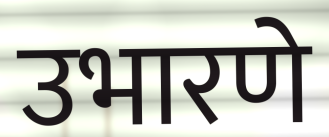
उभारणे